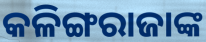
କଳିଙ୍ଗରାଜାଙ୍କ